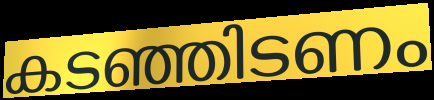
കടഞ്ഞിടണം